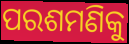
ପରଶମଣିକୁ